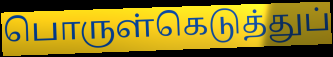
பொருள்கெடுத்துப்